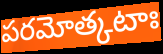
పరమోత్కటాః